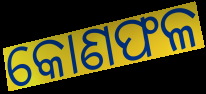
କୋଣଫଳ